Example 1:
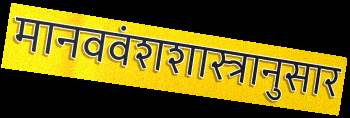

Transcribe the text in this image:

मानववंशशास्त्रानुसार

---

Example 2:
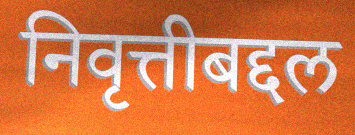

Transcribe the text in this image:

निवृत्तीबद्दल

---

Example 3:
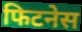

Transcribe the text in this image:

फिटनेस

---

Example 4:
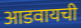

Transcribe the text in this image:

आडवायची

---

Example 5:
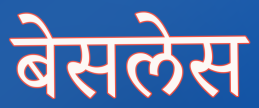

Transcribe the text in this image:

बेसलेस